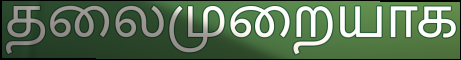
தலைமுறையாக